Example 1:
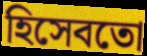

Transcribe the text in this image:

হিসেবতো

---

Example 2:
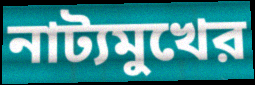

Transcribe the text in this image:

নাট্যমুখের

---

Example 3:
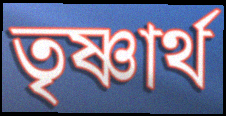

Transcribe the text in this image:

তৃষ্ণার্থ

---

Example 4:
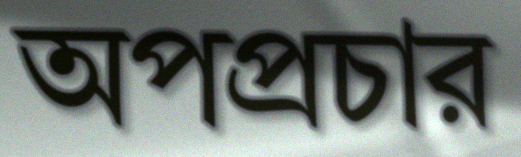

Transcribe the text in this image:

অপপ্রচার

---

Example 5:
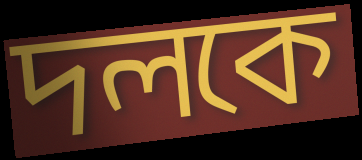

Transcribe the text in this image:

দলকে